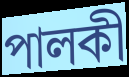
পালকী